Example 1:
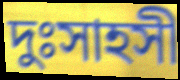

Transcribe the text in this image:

দুঃসাহসী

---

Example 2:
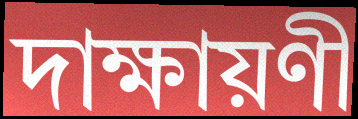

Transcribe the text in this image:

দাক্ষায়ণী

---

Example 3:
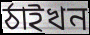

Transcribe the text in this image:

ঠাইখন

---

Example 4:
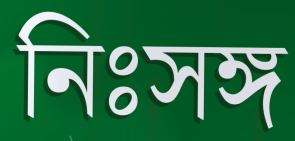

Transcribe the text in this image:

নিঃসঙ্গ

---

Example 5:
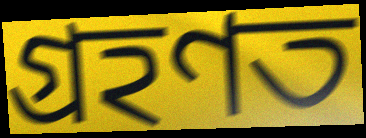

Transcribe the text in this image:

গ্ৰহণত